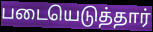
படையெடுத்தார்